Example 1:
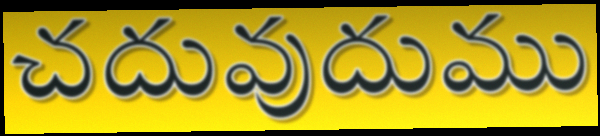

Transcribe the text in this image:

చదువుదుము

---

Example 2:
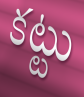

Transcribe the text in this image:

కట్టు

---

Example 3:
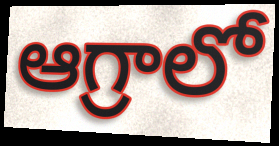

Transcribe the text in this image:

ఆగ్రాలో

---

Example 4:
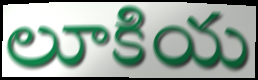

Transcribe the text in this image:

లూకియ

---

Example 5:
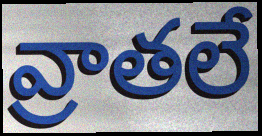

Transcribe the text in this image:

వ్రాతలే